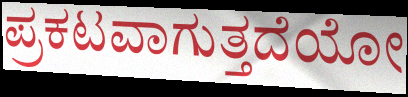
ಪ್ರಕಟವಾಗುತ್ತದೆಯೋ